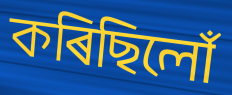
কৰিছিলোঁ